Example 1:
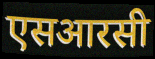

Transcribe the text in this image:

एसआरसी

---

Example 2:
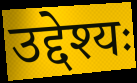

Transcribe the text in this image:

उद्देश्यः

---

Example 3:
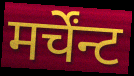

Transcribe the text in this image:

मर्चेंन्ट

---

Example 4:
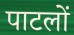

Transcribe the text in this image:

पाटलों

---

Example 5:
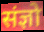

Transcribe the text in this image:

संज्ञो